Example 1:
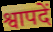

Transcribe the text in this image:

श्वापदें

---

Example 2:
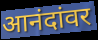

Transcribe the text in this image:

आनंदांवर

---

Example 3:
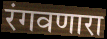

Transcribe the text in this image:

रंगवणारा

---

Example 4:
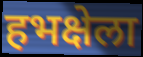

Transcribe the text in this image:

हभक्षेला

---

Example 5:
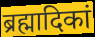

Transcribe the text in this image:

ब्रह्मादिकां